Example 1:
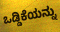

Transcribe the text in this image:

ಒಡ್ಡಿಕೆಯನ್ನು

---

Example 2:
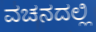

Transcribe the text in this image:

ವಚನದಲ್ಲಿ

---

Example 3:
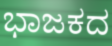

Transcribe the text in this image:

ಭಾಜಕದ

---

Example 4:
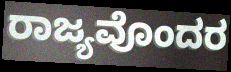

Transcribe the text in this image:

ರಾಜ್ಯವೊಂದರ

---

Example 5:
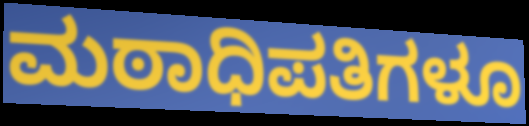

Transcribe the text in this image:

ಮಠಾಧಿಪತಿಗಳೂ